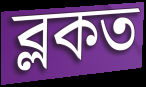
ব্লকত